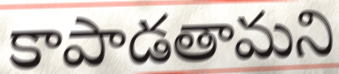
కాపాడతామని